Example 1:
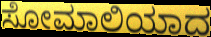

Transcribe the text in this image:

ಸೋಮಾಲಿಯಾದ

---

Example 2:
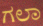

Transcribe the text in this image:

ಗಲಾ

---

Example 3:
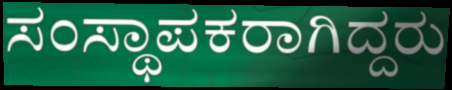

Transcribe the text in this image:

ಸಂಸ್ಥಾಪಕರಾಗಿದ್ದರು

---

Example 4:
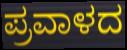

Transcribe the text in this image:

ಪ್ರವಾಳದ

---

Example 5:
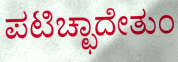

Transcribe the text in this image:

ಪಟಿಚ್ಛಾದೇತುಂ